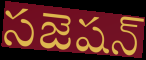
సజెషన్